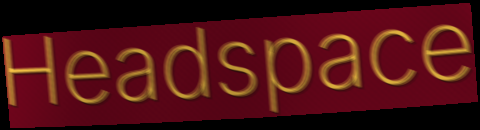
Headspace